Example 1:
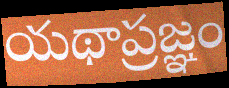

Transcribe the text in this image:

యథాప్రజ్ఞం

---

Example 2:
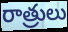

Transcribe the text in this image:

రాత్రులు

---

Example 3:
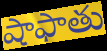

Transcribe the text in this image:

షాఫాతు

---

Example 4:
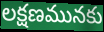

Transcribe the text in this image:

లక్షణమునకు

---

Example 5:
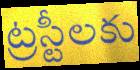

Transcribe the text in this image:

ట్రస్టీలకు